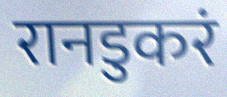
रानडुकरं